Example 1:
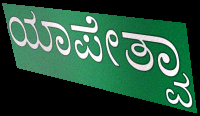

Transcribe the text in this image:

ಯಾಪೇತ್ವಾ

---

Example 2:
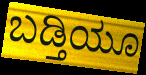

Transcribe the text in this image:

ಬಡ್ತಿಯೂ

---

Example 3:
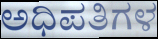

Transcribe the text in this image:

ಅಧಿಪತಿಗಳ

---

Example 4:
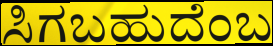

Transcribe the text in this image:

ಸಿಗಬಹುದೆಂಬ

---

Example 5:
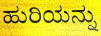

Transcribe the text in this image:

ಹುರಿಯನ್ನು